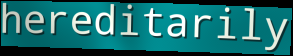
hereditarily